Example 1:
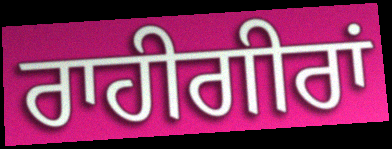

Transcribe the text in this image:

ਰਾਹੀਗੀਰਾਂ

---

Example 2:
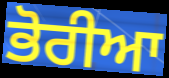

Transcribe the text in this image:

ਭੋਰੀਆ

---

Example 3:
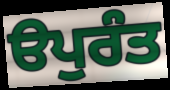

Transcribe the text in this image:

ੳਪੁਰੰਤ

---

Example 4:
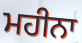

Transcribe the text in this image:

ਮਹੀਨਾ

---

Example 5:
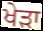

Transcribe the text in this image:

ਖੇੜਾ